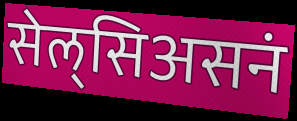
सेल्सिअसनं